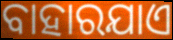
ବାହାରଯାଏ